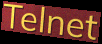
Telnet